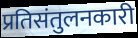
प्रतिसंतुलनकारी